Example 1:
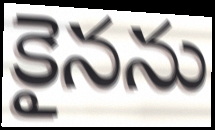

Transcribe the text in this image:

కైనను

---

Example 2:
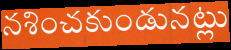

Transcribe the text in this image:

నశించకుండునట్లు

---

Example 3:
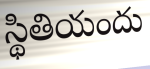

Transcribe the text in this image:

స్థితియందు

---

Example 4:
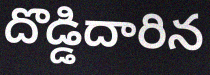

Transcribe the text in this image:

దొడ్డిదారిన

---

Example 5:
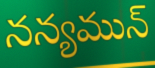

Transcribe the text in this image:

నన్యమున్